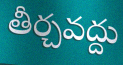
తీర్చవద్దు